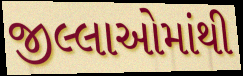
જીલ્લાઓમાંથી